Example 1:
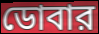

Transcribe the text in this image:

ডোবার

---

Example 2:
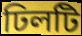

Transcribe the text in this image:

ঢিলটি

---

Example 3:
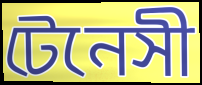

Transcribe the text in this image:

টেনেসী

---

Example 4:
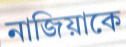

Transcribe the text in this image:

নাজিয়াকে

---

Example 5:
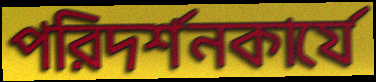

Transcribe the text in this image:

পরিদর্শনকার্যে